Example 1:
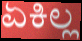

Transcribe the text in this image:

ಏಕಿಲ್ಲ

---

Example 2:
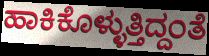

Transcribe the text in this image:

ಹಾಕಿಕೊಳ್ಳುತ್ತಿದ್ದಂತೆ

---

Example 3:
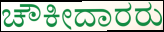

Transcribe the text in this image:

ಚೌಕೀದಾರರು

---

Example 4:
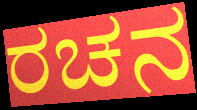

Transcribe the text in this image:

ರಚನ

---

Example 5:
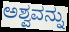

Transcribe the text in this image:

ಅಶ್ವವನ್ನು